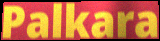
Palkara